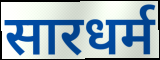
सारधर्म